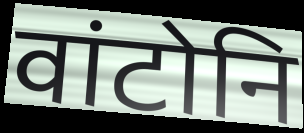
वांटोनि